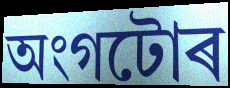
অংগটোৰ